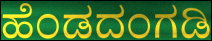
ಹೆಂಡದಂಗಡಿ